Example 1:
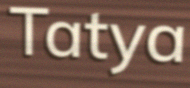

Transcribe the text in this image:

Tatya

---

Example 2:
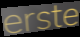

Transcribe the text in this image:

erste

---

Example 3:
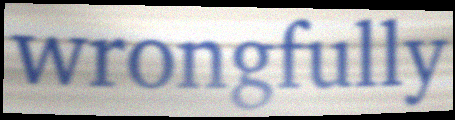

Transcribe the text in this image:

wrongfully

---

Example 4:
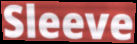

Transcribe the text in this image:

Sleeve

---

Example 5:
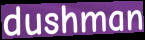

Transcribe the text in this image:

dushman